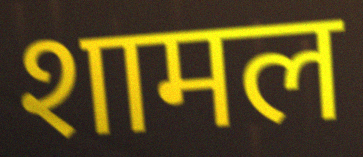
शामल